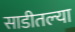
साडीतल्या